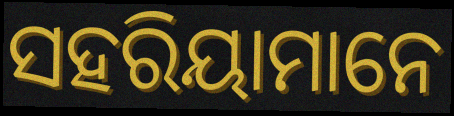
ସହରିୟାମାନେ